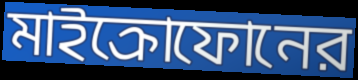
মাইক্রোফোনের